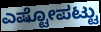
ಎಷ್ಟೋಪಟ್ಟು